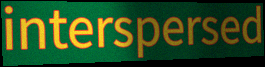
interspersed